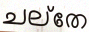
ചല്തേ